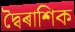
দ্বৈৰাশিক